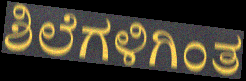
ಶಿಲೆಗಳಿಗಿಂತ